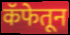
कॅफेतून